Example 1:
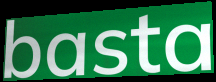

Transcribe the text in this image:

basta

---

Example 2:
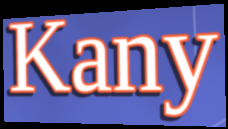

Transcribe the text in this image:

Kany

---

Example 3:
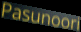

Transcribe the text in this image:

Pasunoori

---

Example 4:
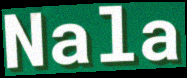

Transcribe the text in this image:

Nala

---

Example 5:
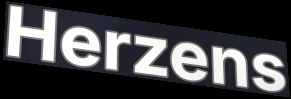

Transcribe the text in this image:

Herzens